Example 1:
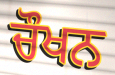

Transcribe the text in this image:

ਚੌਖਨ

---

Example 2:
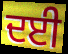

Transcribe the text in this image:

ਦਈ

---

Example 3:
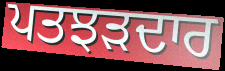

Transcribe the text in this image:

ਪਤਝੜਦਾਰ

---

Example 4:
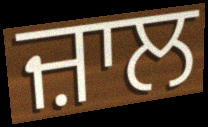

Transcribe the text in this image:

ਜ਼ਾਲ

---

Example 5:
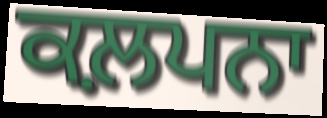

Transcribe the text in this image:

ਕਲ਼ਪਨਾ